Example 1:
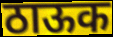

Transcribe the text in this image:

ठाऊक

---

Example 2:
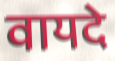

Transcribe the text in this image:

वायदे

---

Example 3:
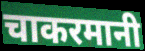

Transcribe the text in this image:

चाकरमानी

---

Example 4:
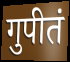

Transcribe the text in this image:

गुपीतं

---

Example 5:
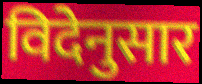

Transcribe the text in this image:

विदेनुसार